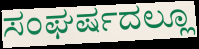
ಸಂಘರ್ಷದಲ್ಲೂ